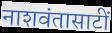
नाशवंतासाटीं